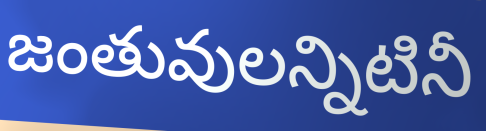
జంతువులన్నిటినీ